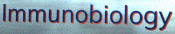
Immunobiology